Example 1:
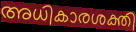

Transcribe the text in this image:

അധികാരശക്തി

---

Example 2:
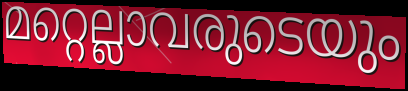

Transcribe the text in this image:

മറ്റെല്ലാവരുടെയും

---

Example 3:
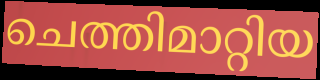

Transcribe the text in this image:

ചെത്തിമാറ്റിയ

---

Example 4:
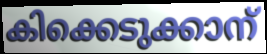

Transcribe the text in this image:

കിക്കെടുക്കാന്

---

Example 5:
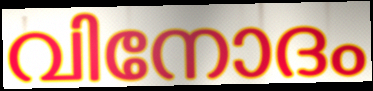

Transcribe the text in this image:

വിനോദം